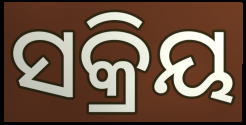
ସକ୍ରିୟ